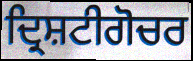
ਦ੍ਰਿਸ਼ਟੀਗੋਚਰ